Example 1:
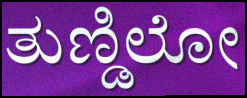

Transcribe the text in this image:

ತುಣ್ಡಿಲೋ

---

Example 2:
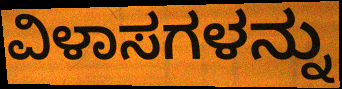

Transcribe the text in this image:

ವಿಳಾಸಗಳನ್ನು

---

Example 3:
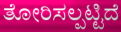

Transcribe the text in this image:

ತೋರಿಸಲ್ಪಟ್ಟಿದೆ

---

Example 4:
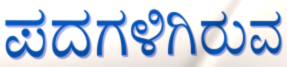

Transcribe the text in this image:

ಪದಗಳಿಗಿರುವ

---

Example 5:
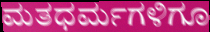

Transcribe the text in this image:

ಮತಧರ್ಮಗಳಿಗೂ